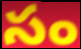
సం